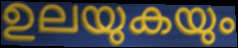
ഉലയുകയും